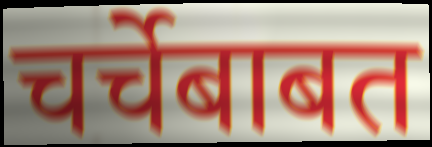
चर्चेबाबत